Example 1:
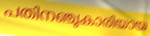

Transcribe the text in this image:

പതിനഞ്ചുകാരിയായ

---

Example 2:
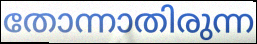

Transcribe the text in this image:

തോന്നാതിരുന്ന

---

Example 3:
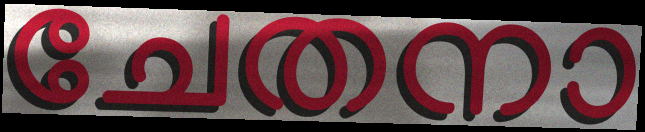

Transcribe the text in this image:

ചേതനാ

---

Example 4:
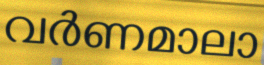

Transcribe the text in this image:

വർണമാലാ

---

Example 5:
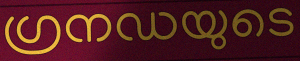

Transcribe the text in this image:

ഗ്രനഡയുടെ